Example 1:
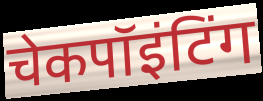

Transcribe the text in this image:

चेकपॉइंटिंग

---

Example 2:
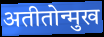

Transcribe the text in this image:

अतीतोन्मुख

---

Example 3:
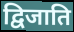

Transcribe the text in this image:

द्विजाति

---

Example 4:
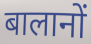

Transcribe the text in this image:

बालानों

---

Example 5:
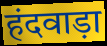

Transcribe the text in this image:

हंदवाड़ा